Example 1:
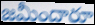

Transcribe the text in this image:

జమీందారూ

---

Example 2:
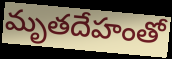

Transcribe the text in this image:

మృతదేహంతో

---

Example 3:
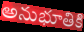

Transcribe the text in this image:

అనుభూతికి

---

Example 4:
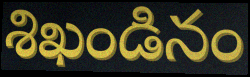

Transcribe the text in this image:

శిఖండినం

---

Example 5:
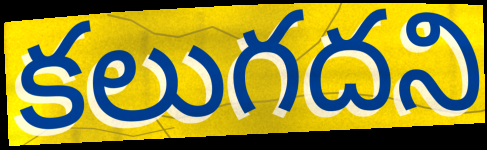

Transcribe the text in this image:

కలుగదని